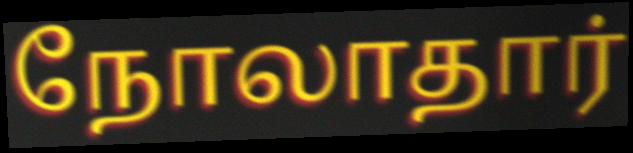
நோலாதார்